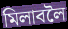
মিলাবলৈ